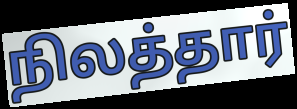
நிலத்தார்